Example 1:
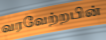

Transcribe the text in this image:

வரவேற்றபின்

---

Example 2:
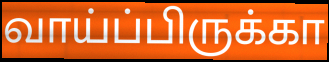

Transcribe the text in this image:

வாய்ப்பிருக்கா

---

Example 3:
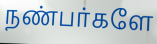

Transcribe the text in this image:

நண்பர்களே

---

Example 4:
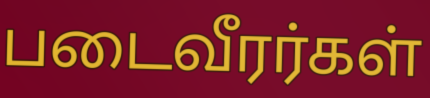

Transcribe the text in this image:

படைவீரர்கள்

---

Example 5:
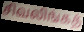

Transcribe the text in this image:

சிவலிங்கத்